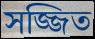
সজ্জিত